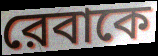
রেবাকে